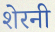
शेरनी